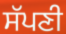
ਸੱਪਣੀ